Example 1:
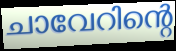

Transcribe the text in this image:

ചാവേറിന്റെ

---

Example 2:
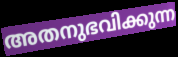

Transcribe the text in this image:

അതനുഭവിക്കുന്ന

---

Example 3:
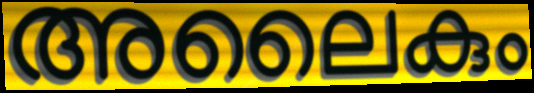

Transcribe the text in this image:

അലൈകും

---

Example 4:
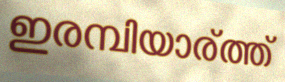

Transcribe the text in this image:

ഇരമ്പിയാര്ത്ത്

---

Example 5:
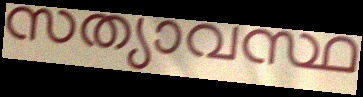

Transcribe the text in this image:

സത്യാവസ്ഥ